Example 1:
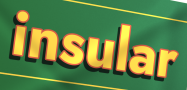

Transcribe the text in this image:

insular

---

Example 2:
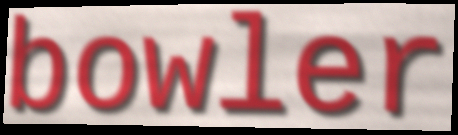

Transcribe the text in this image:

bowler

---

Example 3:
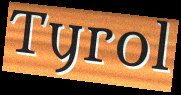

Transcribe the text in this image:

Tyrol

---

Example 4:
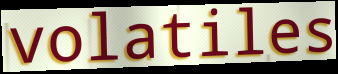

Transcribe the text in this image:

volatiles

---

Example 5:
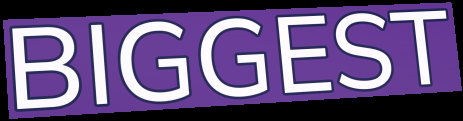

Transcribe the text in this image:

BIGGEST